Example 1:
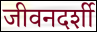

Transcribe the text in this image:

जीवनदर्शी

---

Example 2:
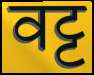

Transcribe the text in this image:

वट्ट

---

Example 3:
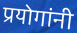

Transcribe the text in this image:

प्रयोगांनी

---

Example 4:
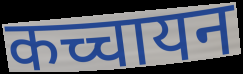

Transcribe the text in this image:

कच्चायन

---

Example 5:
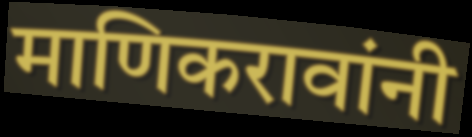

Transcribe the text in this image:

माणिकरावांनी